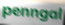
penngal